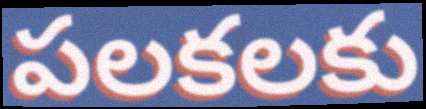
పలకలకు